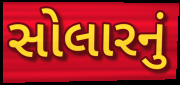
સોલારનું